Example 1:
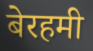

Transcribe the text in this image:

बेरहमी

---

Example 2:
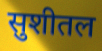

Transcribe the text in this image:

सुशीतल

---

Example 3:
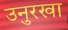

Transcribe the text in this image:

उनुरखा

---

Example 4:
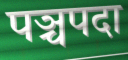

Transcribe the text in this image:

पञ्चपदा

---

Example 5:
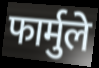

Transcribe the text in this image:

फार्मुले